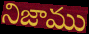
నిజాము